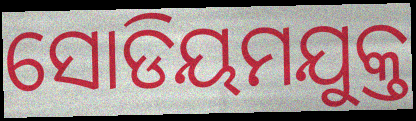
ସୋଡିୟମଯୁକ୍ତ